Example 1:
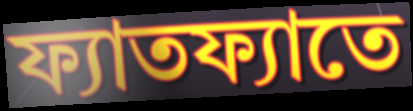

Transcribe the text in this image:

ফ্যাতফ্যাতে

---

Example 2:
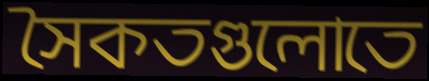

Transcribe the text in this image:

সৈকতগুলোতে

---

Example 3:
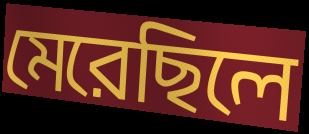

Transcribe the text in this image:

মেরেছিলে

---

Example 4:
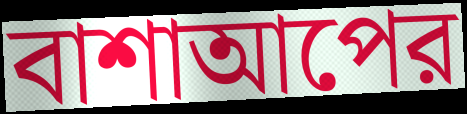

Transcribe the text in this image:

বাশাআপের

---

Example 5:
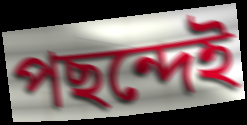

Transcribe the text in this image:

পছন্দেই